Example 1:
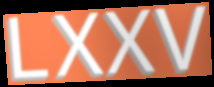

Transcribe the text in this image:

LXXV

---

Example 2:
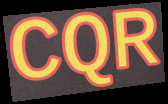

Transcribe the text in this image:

CQR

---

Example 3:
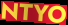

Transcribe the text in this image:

NTYO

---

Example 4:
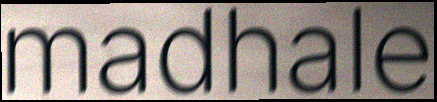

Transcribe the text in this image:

madhale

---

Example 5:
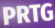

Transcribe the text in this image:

PRTG